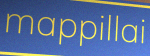
mappillai